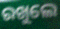
ରଖୁଲେ